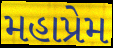
મહાપ્રેમ